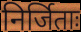
निर्जिताः